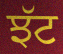
ਝੱਟ